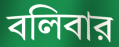
বলিবার